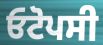
ਓਟੋਪਸੀ